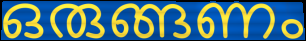
ഒരുങ്ങണം